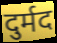
दुर्मद